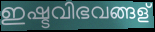
ഇഷ്ടവിഭവങ്ങള്